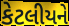
કેટલીયને